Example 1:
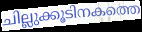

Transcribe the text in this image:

ചില്ലുക്കൂടിനകത്തെ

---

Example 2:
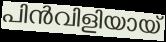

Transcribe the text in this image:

പിൻവിളിയായ്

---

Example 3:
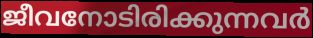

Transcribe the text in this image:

ജീവനോടിരിക്കുന്നവർ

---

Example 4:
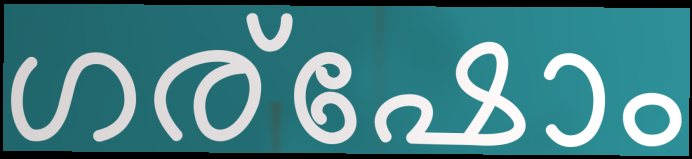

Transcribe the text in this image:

ഗര്ഷോം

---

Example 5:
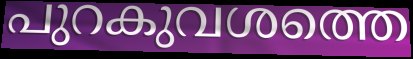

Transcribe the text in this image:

പുറകുവശത്തെ